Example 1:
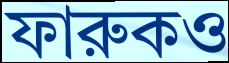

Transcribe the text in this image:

ফারুকও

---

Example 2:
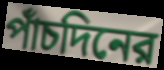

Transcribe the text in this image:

পাঁচদিনের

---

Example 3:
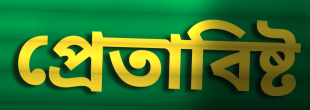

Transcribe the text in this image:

প্রেতাবিষ্ট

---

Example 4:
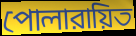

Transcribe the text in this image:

পোলারায়িত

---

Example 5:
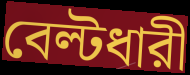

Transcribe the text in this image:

বেল্টধারী